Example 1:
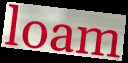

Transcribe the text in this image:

loam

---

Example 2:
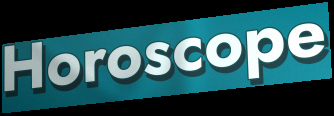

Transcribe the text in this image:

Horoscope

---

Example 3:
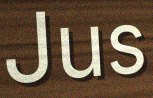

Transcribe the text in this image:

Jus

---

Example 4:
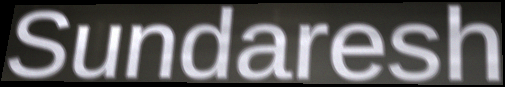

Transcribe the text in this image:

Sundaresh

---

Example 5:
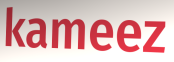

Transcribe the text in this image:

kameez